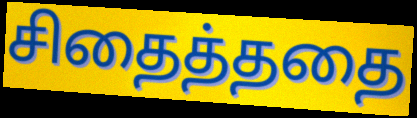
சிதைத்ததை